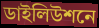
ডাইলিউশনে